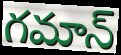
గమాన్